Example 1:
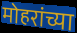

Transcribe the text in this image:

मोहरांच्या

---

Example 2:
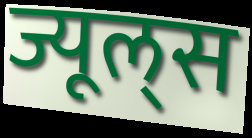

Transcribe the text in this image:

ज्यूल्स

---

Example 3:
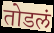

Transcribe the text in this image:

तोडलं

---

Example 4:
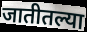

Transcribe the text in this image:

जातीतल्या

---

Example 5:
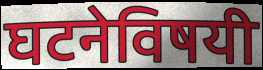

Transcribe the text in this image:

घटनेविषयी